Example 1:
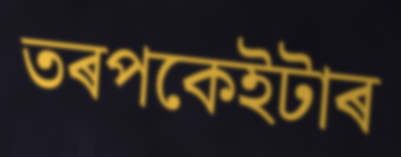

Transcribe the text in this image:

তৰপকেইটাৰ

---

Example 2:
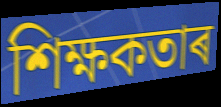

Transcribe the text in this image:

শিক্ষকতাৰ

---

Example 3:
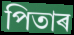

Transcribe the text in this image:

পিতাৰ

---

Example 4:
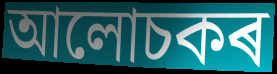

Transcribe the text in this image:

আলোচকৰ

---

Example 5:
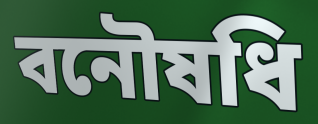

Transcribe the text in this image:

বনৌষধি